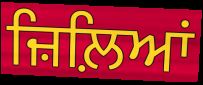
ਜ਼ਿਲ਼ਿਆਂ